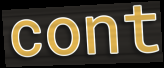
cont